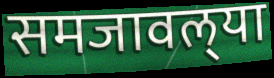
समजावल्या